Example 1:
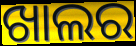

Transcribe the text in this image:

ଖାଲର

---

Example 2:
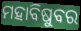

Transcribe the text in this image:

ମହାବିଷୁବର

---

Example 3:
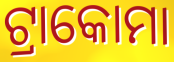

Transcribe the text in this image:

ଟ୍ରାକୋମା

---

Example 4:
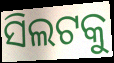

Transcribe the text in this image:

ସିଲଟକୁ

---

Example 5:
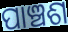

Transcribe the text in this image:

ପାଞ୍ଚଶ